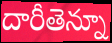
దారీతెన్నూ